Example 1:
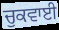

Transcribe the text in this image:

ਚੁਕਵਾਈ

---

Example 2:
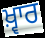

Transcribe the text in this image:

ਖ਼੍ਵਾਰ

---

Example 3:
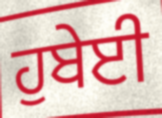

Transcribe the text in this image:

ਹੁਬੇਈ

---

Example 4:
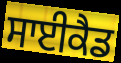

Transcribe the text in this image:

ਸਾਈਕੈਡ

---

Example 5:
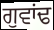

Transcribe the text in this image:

ਗੁਵਾਂਢ